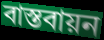
বাস্তবায়ন